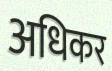
अधिकर